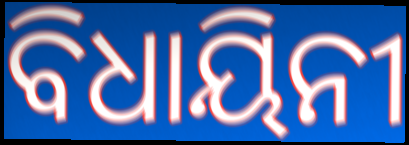
ବିଧାୟିନୀ